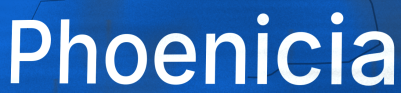
Phoenicia